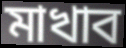
মাখাব